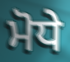
ਮੋਧੇ